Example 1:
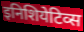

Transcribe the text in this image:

इनिशियेटिव्स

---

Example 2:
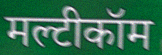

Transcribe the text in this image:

मल्टीकॉम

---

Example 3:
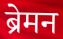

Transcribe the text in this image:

ब्रेमन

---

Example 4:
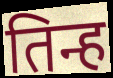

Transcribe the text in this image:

तिन्ह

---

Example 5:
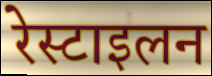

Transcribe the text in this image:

रेस्टाइलन